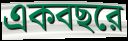
একবছরে